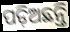
ପଡ଼ିଅଛନ୍ତି